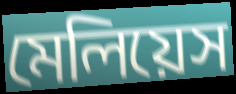
মেলিয়েস